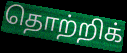
தொற்றிக்